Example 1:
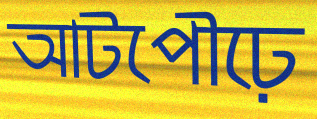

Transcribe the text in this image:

আটপৌঢ়ে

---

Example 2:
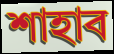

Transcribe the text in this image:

শাহাব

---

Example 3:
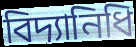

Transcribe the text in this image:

বিদ্যানিধি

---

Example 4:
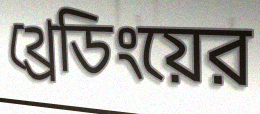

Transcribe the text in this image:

থ্রেডিংয়ের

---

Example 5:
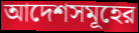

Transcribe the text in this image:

আদেশসমূহের